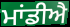
ਮਾਂਡੀਐ